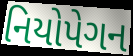
નિયોપેગન